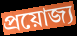
প্রয়োজ্য